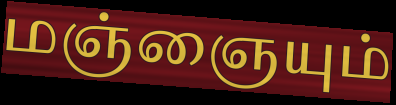
மஞ்ஞையும்